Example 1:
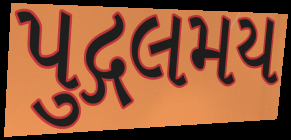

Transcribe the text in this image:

પુદ્ગલમય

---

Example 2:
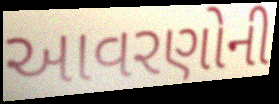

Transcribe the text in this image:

આવરણોની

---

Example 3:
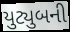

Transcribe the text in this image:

યુટ્યુબની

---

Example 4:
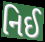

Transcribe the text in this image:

નિઈ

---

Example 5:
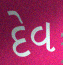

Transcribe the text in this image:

દેવ